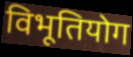
विभूतियोग